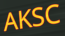
AKSC